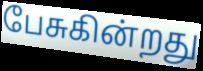
பேசுகின்றது